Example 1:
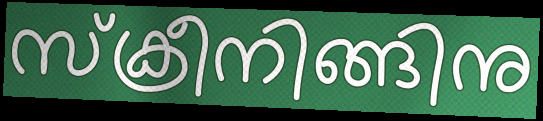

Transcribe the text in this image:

സ്ക്രീനിങ്ങിനു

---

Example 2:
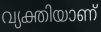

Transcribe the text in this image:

വ്യക്തിയാണ്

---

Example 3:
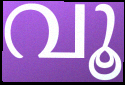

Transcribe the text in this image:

വൂ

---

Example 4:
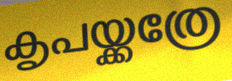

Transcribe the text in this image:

കൃപയ്ക്കത്രേ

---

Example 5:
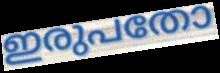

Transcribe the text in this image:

ഇരുപതോ